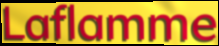
Laflamme